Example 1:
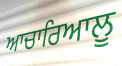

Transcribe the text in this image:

ਆਚਾਰਿਆਲੂ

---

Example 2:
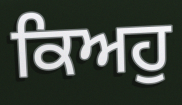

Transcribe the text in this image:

ਕਿਅਹੁ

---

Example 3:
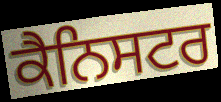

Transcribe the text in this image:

ਕੈਨਿਸਟਰ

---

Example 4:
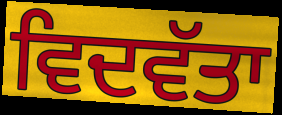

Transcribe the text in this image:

ਵਿਦਵੱਤਾ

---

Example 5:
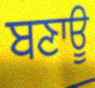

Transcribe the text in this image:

ਬਣਾਊ